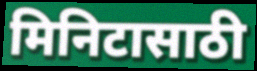
मिनिटासाठी